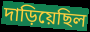
দাড়িয়েছিল